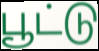
பூட்டு